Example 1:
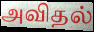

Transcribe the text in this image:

அவிதல்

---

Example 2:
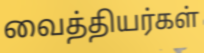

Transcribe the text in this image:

வைத்தியர்கள்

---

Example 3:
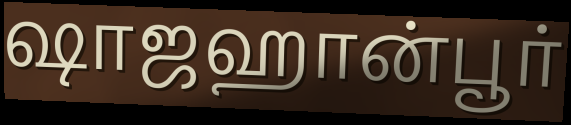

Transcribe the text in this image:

ஷாஜஹான்பூர்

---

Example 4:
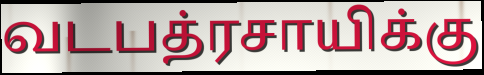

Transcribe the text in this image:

வடபத்ரசாயிக்கு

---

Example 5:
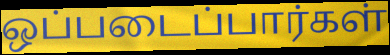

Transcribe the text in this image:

ஒப்படைப்பார்கள்